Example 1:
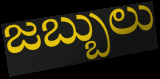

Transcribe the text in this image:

జబ్బులు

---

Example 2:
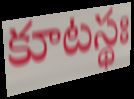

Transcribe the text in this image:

కూటస్థః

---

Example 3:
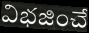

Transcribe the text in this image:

విభజించే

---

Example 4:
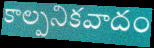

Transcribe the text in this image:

కాల్పనికవాదం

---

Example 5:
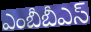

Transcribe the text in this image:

ఎంబీబీఎస్